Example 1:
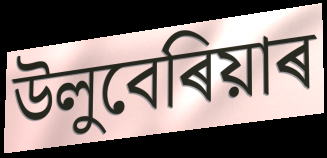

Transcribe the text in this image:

উলুবেৰিয়াৰ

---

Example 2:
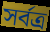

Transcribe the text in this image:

সৰ্বত্ৰ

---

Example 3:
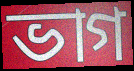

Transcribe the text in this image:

ভাগ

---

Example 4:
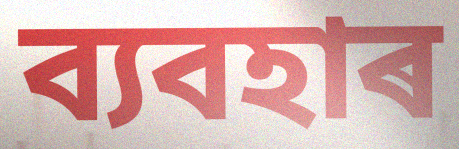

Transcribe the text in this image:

ব্যবহাৰ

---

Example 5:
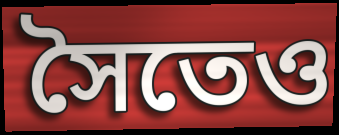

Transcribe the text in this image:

সৈতেও